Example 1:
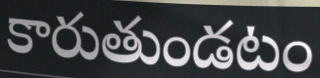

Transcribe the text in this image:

కారుతుండటం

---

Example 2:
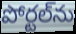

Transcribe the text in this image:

పోర్టల్‌ను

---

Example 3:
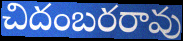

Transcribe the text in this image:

చిదంబరరావు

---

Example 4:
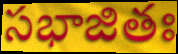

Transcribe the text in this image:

సభాజితః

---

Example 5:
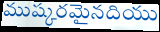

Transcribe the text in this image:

ముష్కరమైనదియు